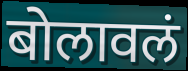
बोलावलं